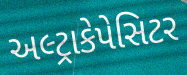
અલ્ટ્રાકેપેસિટર